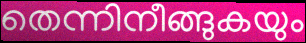
തെന്നിനീങ്ങുകയും